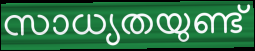
സാധ്യതയുണ്ട്